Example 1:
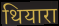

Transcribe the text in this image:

थियारा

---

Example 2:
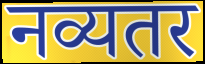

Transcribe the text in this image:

नव्यतर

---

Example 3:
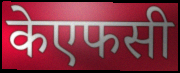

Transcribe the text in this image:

केएफसी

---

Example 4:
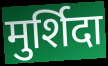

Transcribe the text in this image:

मुर्शिदा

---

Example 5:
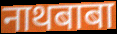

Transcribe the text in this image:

नाथबाबा